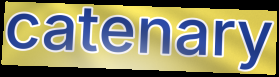
catenary